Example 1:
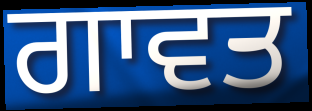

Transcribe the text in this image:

ਗਾਵਤ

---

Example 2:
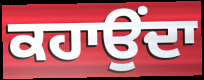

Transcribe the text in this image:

ਕਹਾਉਂਦਾ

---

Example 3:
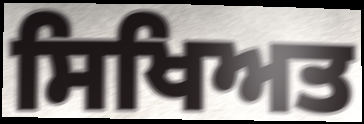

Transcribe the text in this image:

ਸਿਖਿਅਤ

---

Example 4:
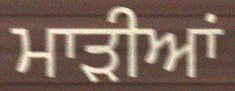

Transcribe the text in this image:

ਮਾੜੀਆਂ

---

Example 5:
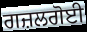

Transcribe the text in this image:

ਗਜ਼ਲਗੋਈ